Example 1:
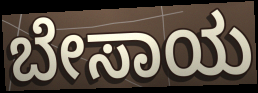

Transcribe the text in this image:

ಬೇಸಾಯ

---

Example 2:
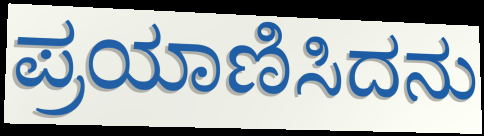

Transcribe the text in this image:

ಪ್ರಯಾಣಿಸಿದನು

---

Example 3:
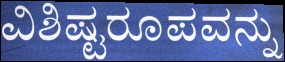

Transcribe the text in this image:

ವಿಶಿಷ್ಟರೂಪವನ್ನು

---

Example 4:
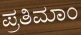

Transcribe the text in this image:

ಪ್ರತಿಮಾಂ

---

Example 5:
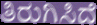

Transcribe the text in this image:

ತಿರುಗಿಸಿದೆ